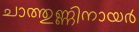
ചാത്തുണ്ണിനായർ